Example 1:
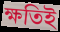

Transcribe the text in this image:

ক্ষতিই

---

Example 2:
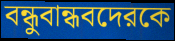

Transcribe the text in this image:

বন্ধুবান্ধবদেরকে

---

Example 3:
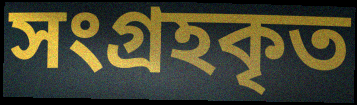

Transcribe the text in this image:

সংগ্রহকৃত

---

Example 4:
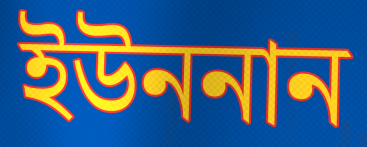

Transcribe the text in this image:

ইউননান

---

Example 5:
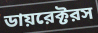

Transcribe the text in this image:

ডায়রেক্টরস